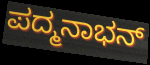
ಪದ್ಮನಾಭನ್